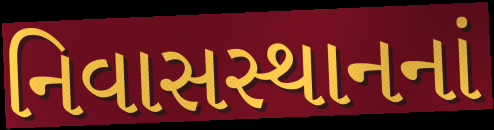
નિવાસસ્થાનનાં